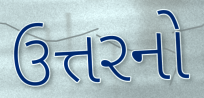
ઉત્તરનો